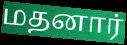
மதனார்